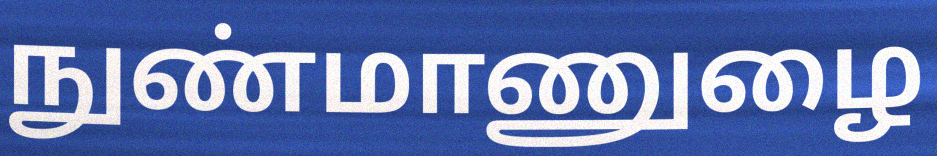
நுண்மாணுழை